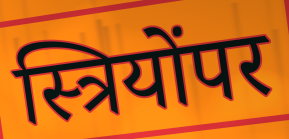
स्त्रियोंपर